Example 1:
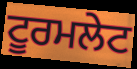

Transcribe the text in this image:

ਟੂਰਮਲੇਟ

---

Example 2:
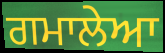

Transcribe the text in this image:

ਗਮਾਲੇਆ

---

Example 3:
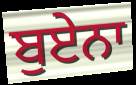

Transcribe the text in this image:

ਬੁਏਨਾ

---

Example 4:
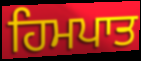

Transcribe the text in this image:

ਹਿਮਪਾਤ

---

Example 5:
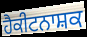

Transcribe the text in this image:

ਹੈਕੀਟਨਾਸ਼ਕ